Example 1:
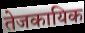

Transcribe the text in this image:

तेजकायिक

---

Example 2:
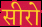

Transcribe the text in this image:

सीरो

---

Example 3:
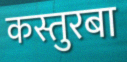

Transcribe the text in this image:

कस्तुरबा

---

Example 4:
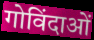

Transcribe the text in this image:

गोविंदाओं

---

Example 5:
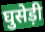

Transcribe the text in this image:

घुसेड़ी